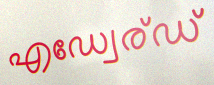
എഡ്വേര്ഡ്